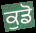
ਕੁਡੋ